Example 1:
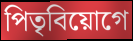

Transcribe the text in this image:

পিতৃবিয়োগে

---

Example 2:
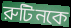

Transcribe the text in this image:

রুটিনকে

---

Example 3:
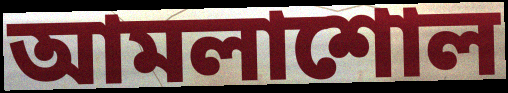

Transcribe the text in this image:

আমলাশোল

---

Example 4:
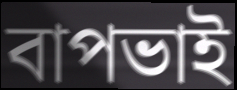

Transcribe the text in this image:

বাপভাই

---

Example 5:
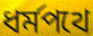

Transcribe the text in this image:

ধর্মপথে